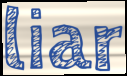
liar